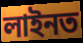
লাইনত